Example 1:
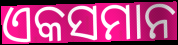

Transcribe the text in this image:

ଏକସମାନ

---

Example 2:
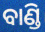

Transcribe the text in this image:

ବାଣ୍ଡି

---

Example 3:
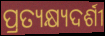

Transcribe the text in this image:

ପ୍ରତ୍ୟକ୍ଷ୍ୟଦର୍ଶୀ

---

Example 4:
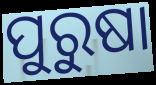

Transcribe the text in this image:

ପୁରୁଷା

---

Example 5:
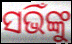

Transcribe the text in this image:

ସଭିଁଙ୍କୁ